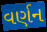
વર્ણન